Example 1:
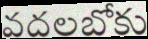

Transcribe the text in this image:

వదలబోకు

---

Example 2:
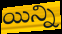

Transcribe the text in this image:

యిన్ని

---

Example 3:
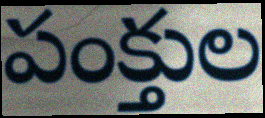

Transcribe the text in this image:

పంక్తుల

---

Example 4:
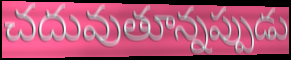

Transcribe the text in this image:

చదువుతూన్నప్పుడు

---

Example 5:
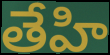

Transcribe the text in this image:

తేహి